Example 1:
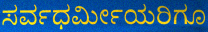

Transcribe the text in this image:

ಸರ್ವಧರ್ಮೀಯರಿಗೂ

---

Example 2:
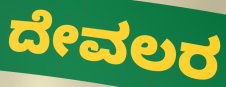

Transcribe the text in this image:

ದೇವಲರ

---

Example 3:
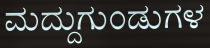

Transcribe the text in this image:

ಮದ್ದುಗುಂಡುಗಳ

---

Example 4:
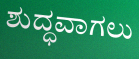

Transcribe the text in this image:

ಶುದ್ಧವಾಗಲು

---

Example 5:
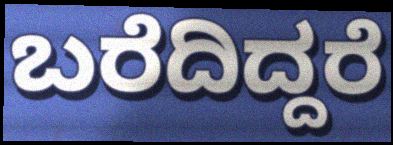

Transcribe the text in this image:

ಬರೆದಿದ್ದರೆ